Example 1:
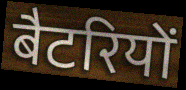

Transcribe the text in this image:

बैटरियों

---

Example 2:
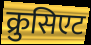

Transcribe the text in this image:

क्रुसिएट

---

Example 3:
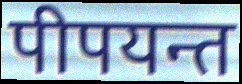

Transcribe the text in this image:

पीपयन्त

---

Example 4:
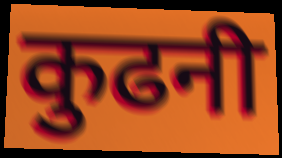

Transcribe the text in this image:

कुढनी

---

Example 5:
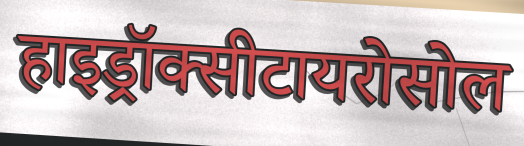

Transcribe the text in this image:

हाइड्रॉक्सीटायरोसोल